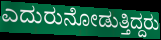
ಎದುರುನೋಡುತ್ತಿದ್ದರು